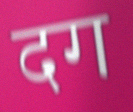
दग